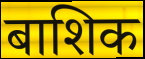
बाशिक